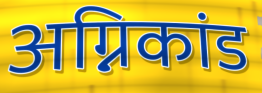
अग्निकांड